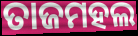
ତାଜମହଲ